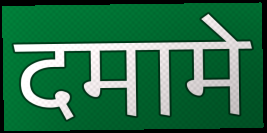
दमामे